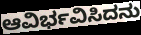
ಆವಿರ್ಭವಿಸಿದನು